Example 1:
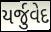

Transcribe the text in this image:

યર્જુવેદ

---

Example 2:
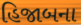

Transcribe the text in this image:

હિજાબના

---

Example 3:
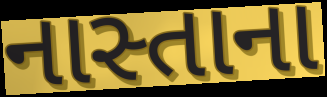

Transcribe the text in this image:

નાસ્તાના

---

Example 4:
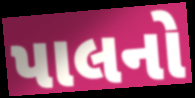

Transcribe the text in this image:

પાલનો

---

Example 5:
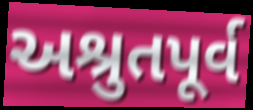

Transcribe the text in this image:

અશ્રુતપૂર્વ